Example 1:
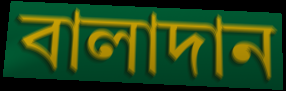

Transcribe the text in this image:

বালাদান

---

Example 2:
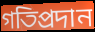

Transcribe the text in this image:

গতিপ্রদান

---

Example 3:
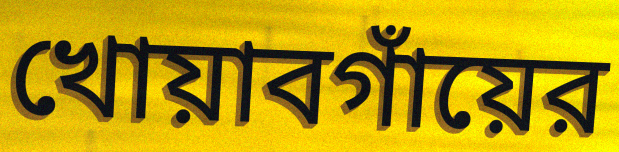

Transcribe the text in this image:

খোয়াবগাঁয়ের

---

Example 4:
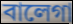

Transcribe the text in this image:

বালেগা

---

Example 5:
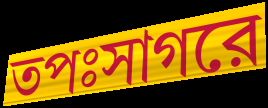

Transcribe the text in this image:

তপঃসাগরে